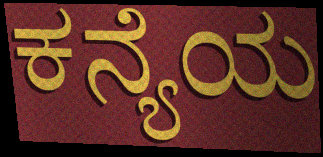
ಕನ್ಯೆಯ